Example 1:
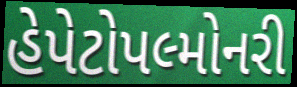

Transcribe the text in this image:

હેપેટોપલ્મોનરી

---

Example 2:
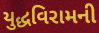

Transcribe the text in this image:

યુદ્ધવિરામની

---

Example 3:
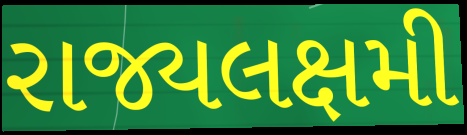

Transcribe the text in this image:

રાજ્યલક્ષમી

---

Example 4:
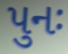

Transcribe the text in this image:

પુનઃ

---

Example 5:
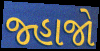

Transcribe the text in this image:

જ્હાજો